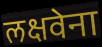
लक्षवेना